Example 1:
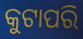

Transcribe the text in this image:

କୁଟାପରି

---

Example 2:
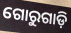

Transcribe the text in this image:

ଗୋରୁଗାଡ଼ି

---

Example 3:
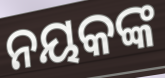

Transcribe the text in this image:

ନୟକଙ୍କ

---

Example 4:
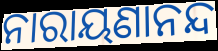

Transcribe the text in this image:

ନାରାୟଣାନନ୍ଦ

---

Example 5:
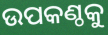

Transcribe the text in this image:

ଉପକଣ୍ଠକୁ